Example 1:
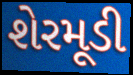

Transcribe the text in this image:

શેરમૂડી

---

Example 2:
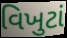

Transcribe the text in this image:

વિખુટાં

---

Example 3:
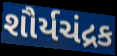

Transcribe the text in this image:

શૌર્યચંદ્રક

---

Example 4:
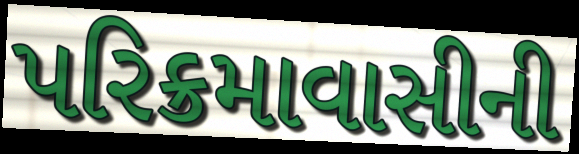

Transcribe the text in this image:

પરિક્રમાવાસીની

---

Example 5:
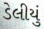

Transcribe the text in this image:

ડેલીયું